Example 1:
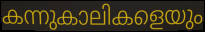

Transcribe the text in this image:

കന്നുകാലികളെയും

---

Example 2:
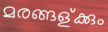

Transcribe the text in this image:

മരങ്ങള്ക്കും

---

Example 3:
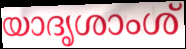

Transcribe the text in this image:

യാദൃശാംശ്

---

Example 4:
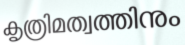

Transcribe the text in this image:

കൃത്രിമത്വത്തിനും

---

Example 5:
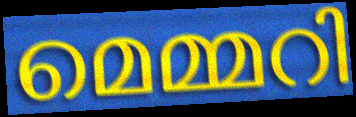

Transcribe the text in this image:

മെമ്മറി